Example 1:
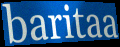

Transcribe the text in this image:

baritaa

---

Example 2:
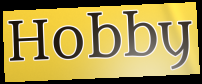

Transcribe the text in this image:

Hobby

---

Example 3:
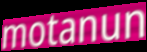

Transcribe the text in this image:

motanun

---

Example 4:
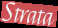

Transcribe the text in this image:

Strata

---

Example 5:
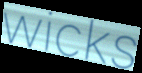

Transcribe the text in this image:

wicks